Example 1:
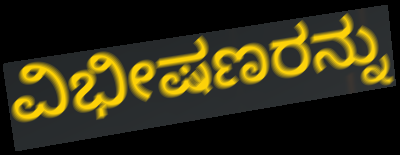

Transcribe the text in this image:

ವಿಭೀಷಣರನ್ನು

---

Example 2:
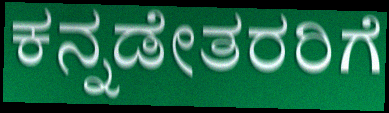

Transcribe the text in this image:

ಕನ್ನಡೇತರರಿಗೆ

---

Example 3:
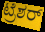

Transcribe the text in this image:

ಟ್ರೆಶರ್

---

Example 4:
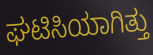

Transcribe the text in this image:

ಘಟಿಸಿಯಾಗಿತ್ತು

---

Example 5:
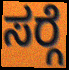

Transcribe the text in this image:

ಸರ್‍ಗೆ